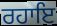
ਰਹਾਇ